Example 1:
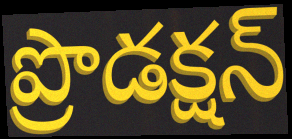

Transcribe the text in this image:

ప్రొడక్షన్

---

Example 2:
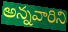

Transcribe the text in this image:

అన్నవారిని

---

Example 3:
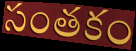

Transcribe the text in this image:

సంతకం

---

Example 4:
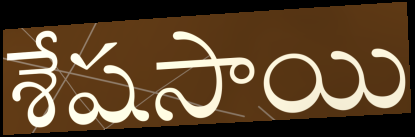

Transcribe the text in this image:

శేషసాయి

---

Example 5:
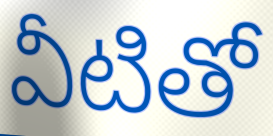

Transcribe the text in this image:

వీటితో